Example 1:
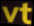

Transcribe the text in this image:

vt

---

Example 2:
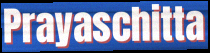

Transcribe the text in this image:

Prayaschitta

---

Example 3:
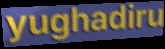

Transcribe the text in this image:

yughadiru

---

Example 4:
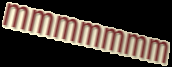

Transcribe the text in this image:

mmmmmmm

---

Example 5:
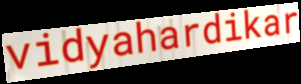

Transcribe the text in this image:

vidyahardikar